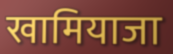
खामियाजा